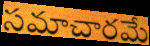
సమాచారమే